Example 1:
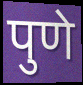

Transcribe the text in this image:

पुणे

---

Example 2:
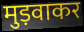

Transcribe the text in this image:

मुड़वाकर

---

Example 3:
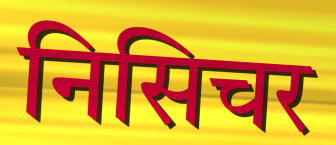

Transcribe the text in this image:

निसिचर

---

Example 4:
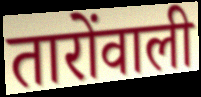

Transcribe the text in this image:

तारोंवाली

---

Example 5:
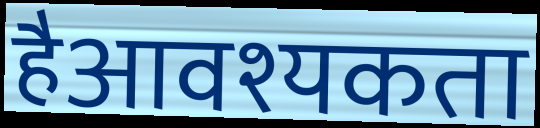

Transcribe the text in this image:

हैआवश्यकता